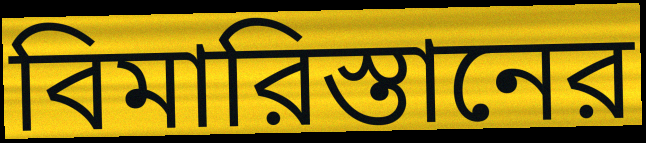
বিমারিস্তানের